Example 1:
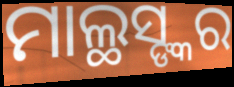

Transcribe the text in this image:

ମାଲ୍ଥସ୍ଙ୍କର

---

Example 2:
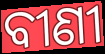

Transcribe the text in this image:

ବୀଣୀ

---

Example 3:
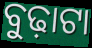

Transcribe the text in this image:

ବୁଢ଼ାଟା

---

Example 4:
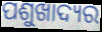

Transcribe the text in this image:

ପଶୁଖାଦ୍ୟର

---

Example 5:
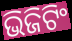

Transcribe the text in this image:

ଭିଜିଟିଂ